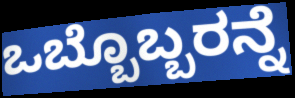
ಒಬ್ಬೊಬ್ಬರನ್ನೆ